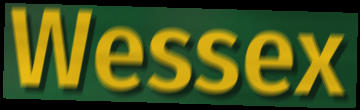
Wessex